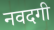
नवदगी